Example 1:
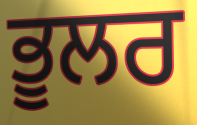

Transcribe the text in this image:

ਭੂਲਰ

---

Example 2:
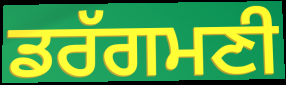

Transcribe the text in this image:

ਡਰੱਗਮਣੀ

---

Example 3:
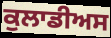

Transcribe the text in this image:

ਕੁਲਾਡੀਅਸ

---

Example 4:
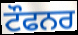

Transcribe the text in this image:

ਟੌਫਨਰ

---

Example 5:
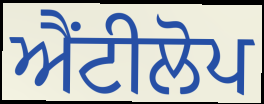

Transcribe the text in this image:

ਐਂਟੀਲੋਪ